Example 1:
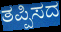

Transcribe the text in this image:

ತಪ್ಪಿಸದ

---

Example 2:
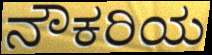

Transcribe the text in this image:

ನೌಕರಿಯ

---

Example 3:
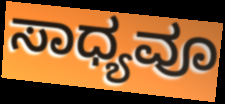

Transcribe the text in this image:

ಸಾಧ್ಯವೂ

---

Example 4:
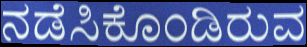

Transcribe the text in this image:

ನಡೆಸಿಕೊಂಡಿರುವ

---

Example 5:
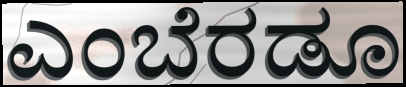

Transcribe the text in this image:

ಎಂಬೆರಡೂ